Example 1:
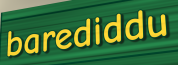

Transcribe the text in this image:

barediddu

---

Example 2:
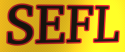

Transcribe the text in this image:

SEFL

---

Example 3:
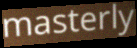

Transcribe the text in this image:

masterly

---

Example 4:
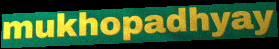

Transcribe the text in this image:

mukhopadhyay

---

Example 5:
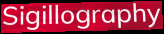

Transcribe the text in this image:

Sigillography